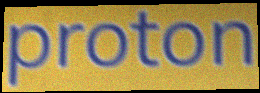
proton